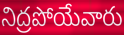
నిద్రపోయేవారు